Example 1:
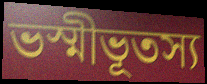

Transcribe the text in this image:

ভস্মীভূতস্য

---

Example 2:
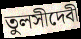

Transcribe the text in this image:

তুলসীদেবী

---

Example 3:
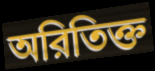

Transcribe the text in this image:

অরিতিক্ত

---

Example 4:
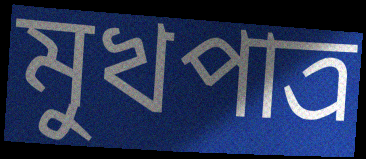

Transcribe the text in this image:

মুখপাত্র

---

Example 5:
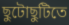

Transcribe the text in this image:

ছুটোছুটিতে